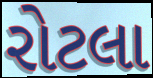
રોટલા